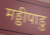
मड्डीपाडु